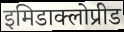
इमिडाक्लोप्रीड